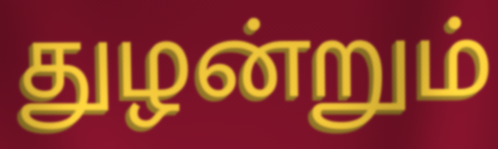
துழன்றும்